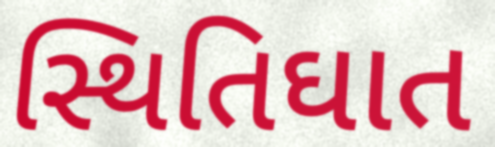
સ્થિતિઘાત